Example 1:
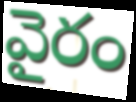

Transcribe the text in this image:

వైరం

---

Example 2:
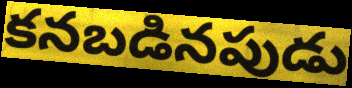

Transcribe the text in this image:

కనబడినపుడు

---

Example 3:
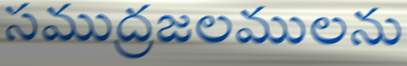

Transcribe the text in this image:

సముద్రజలములను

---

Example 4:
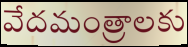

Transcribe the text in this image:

వేదమంత్రాలకు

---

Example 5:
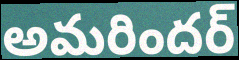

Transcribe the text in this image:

అమరిందర్